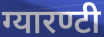
ग्यारण्टी